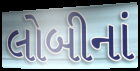
લોબીનાં